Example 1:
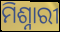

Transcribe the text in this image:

ମିଶ୍ନାରୀ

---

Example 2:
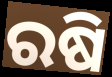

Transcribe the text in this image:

ରଷି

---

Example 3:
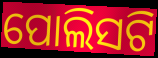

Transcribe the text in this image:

ପୋଲିସଟି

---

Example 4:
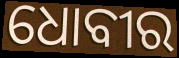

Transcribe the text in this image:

ଧୋବୀର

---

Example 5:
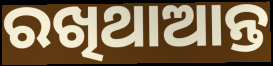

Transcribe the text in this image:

ରଖିଥାଆନ୍ତ